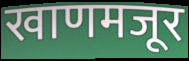
खाणमजूर